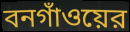
বনগাঁওয়ের